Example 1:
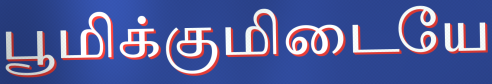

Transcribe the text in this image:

பூமிக்குமிடையே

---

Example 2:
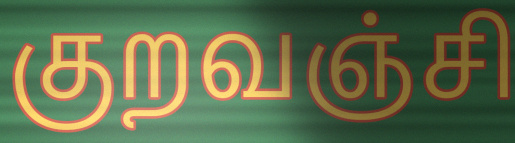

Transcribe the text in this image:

குறவஞ்சி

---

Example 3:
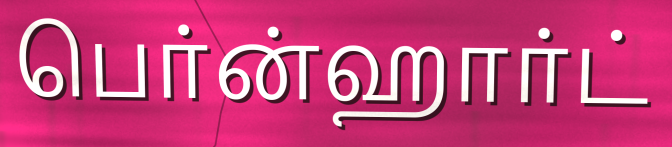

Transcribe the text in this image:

பெர்ன்ஹார்ட்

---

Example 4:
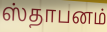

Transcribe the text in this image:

ஸ்தாபனம்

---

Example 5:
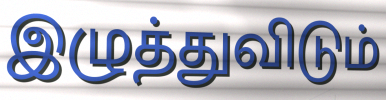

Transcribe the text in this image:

இழுத்துவிடும்